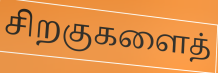
சிறகுகளைத்